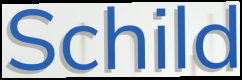
Schild